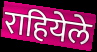
राहियेले